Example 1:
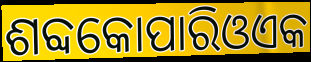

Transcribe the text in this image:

ଶବ୍ଦକୋପାରିଓଏକ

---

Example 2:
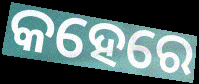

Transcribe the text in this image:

କହେରେ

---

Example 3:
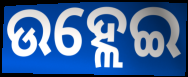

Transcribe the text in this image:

ଉହ୍ଲେଇ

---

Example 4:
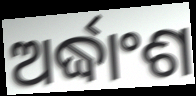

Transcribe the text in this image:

ଅର୍ଦ୍ଧାଂଶ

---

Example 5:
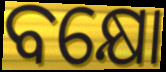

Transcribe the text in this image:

ବକ୍ଷୋ